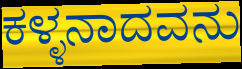
ಕಳ್ಳನಾದವನು